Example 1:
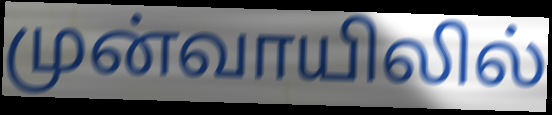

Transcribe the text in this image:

முன்வாயிலில்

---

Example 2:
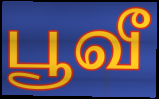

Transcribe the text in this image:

பூவீ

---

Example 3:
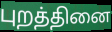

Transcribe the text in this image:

புறத்தினை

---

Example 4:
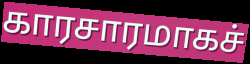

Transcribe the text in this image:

காரசாரமாகச்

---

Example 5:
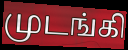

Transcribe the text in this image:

முடங்கி